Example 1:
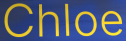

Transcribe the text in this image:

Chloe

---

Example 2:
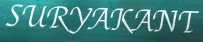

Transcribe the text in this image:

SURYAKANT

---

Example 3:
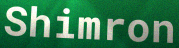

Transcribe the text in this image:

Shimron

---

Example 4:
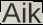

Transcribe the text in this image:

Aik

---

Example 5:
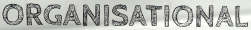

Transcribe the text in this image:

ORGANISATIONAL